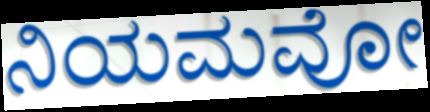
ನಿಯಮವೋ